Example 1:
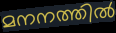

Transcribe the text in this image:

മനനത്തിൽ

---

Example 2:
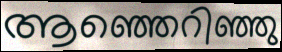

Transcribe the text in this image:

ആഞ്ഞെറിഞ്ഞു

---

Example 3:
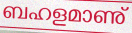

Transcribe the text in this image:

ബഹളമാണു്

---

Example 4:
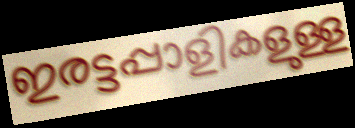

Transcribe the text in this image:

ഇരട്ടപ്പാളികളുള്ള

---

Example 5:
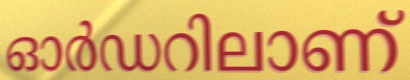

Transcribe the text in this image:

ഓർഡറിലാണ്